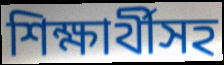
শিক্ষার্থীসহ